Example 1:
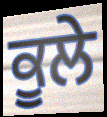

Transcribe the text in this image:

ਕੂਲੇ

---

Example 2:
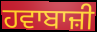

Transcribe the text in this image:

ਹਵਾਬਾਜ਼ੀ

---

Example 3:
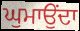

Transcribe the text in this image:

ਘੁਮਾਉਂਦਾ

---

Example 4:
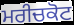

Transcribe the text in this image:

ਮਰੀਚਕੋਟ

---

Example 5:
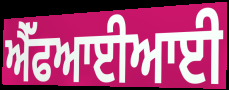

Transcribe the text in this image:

ਐੱਫਆਈਆਈ